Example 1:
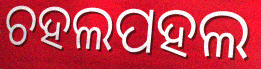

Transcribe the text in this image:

ଚହଲପହଲ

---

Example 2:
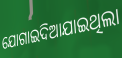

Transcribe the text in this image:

ଯୋଗାଇଦିଆଯାଇଥିଲା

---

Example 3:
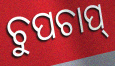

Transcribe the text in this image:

ଚୁପଚାପ୍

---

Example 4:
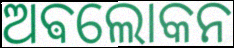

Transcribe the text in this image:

ଅଵଲୋକନ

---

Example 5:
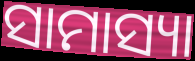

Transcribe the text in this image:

ସାମାସ୍ୟା